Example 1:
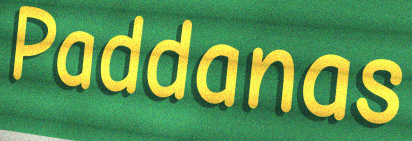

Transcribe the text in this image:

Paddanas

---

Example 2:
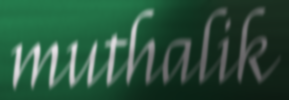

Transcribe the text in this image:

muthalik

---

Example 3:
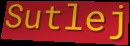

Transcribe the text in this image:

Sutlej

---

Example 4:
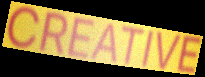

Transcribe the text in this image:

CREATIVE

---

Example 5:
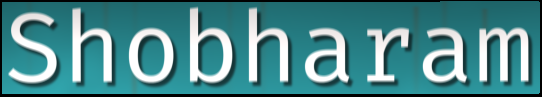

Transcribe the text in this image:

Shobharam